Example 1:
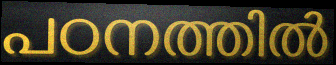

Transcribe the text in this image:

പഠനത്തിൽ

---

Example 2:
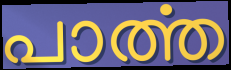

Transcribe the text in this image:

പാൎത്ത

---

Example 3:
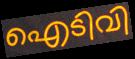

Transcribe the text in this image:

ഐടിവി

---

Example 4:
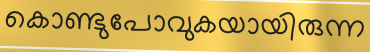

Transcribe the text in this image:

കൊണ്ടുപോവുകയായിരുന്ന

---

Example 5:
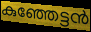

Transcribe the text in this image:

കുഞ്ഞേട്ടൻ